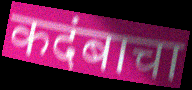
कदंबाचा